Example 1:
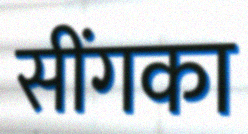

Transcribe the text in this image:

सींगका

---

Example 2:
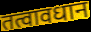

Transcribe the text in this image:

तत्‍वावधान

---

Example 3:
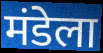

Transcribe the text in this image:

मंडेला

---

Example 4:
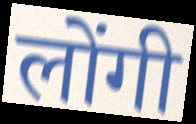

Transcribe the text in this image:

लोंगी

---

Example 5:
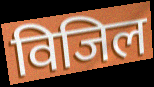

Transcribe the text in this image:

विजिल